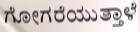
ಗೋಗರೆಯುತ್ತಾಳೆ